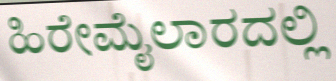
ಹಿರೇಮೈಲಾರದಲ್ಲಿ